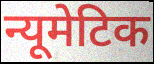
न्यूमेटिक